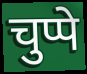
चुप्पे